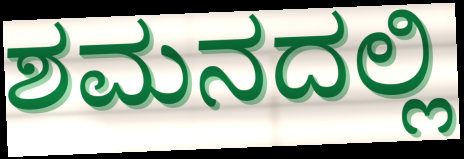
ಶಮನದಲ್ಲಿ